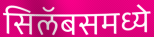
सिलॅबसमध्ये